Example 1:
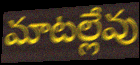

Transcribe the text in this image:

మాటల్లేవు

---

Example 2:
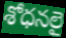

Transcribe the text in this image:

శోధనలై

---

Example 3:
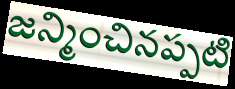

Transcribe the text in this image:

జన్మించినప్పటి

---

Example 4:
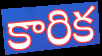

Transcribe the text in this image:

కారిక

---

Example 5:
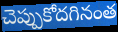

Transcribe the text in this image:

చెప్పుకోదగినంత